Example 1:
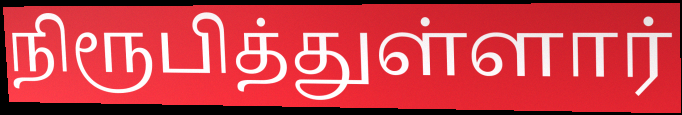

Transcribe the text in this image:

நிரூபித்துள்ளார்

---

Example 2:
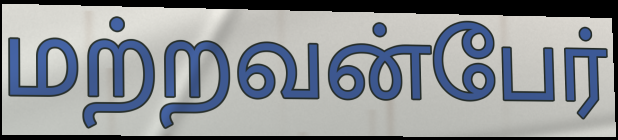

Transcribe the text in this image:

மற்றவன்பேர்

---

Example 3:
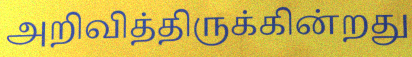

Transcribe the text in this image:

அறிவித்திருக்கின்றது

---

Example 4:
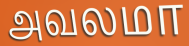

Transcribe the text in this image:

அவலமா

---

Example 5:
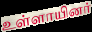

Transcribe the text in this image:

உள்ளாயினர்